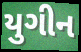
યુગીન